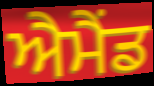
ਐਮੈਂਡ